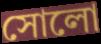
সোলো